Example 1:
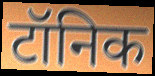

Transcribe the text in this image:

टॉनिक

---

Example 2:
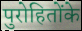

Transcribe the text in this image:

पुरोहितोंके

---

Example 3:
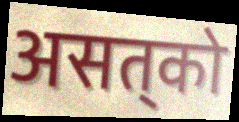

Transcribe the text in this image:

असत्‌को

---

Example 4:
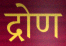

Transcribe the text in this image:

द्रोण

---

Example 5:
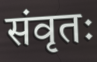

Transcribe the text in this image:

संवृतः